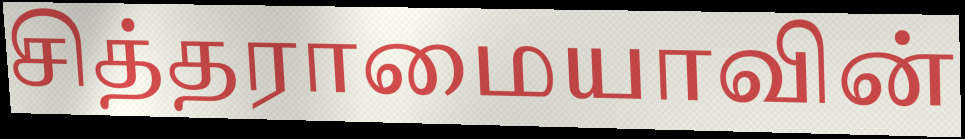
சித்தராமையாவின்